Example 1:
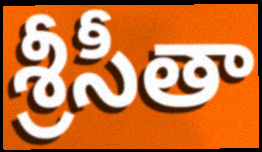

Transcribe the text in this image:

శ్రీసీతా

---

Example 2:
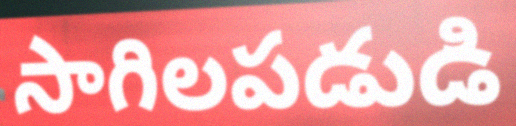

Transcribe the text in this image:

సాగిలపడుడి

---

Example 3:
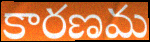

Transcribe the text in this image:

కారణమ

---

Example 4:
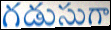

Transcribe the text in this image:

గడుసుగా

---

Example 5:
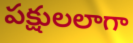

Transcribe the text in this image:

పక్షులలాగా